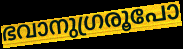
ഭവാനുഗ്രരൂപോ